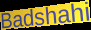
Badshahi